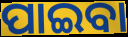
ପାଇବା